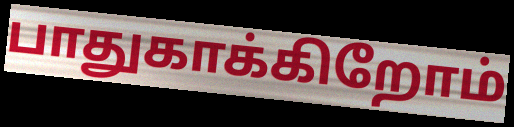
பாதுகாக்கிறோம்